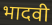
भादवी